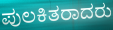
ಪುಲಕಿತರಾದರು